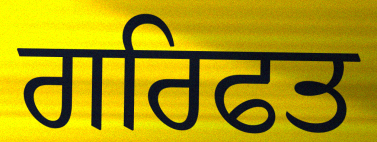
ਗਰਿਫਤ